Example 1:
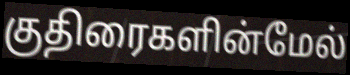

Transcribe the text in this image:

குதிரைகளின்மேல்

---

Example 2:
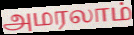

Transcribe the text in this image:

அமரலாம்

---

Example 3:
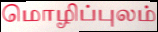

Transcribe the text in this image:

மொழிப்புலம்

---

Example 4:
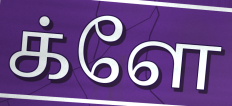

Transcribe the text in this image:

க்ளே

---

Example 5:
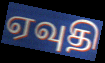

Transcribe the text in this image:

ஏவுதி